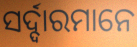
ସର୍ଦ୍ଦାରମାନେ